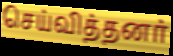
செய்வித்தனர்